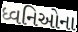
ધ્વનિઓના